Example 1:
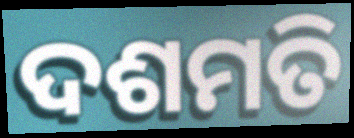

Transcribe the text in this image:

ଦଶମତି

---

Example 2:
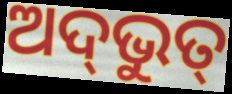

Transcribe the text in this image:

ଅଦ୍‌ଭୁତ୍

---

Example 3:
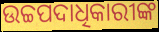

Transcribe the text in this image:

ଉଚ୍ଚପଦାଧିକାରୀଙ୍କ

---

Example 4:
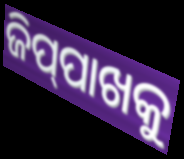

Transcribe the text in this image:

ଜିପ୍‌ପାଖକୁ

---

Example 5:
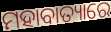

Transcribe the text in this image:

ମହାବାତ୍ୟାରେ